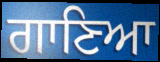
ਗਾਣਿਆ